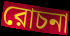
রোচনা